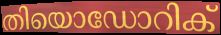
തിയൊഡോറിക്